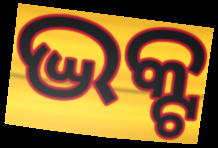
ଦ୍ଭକ୍ଟ